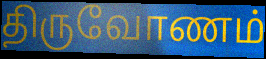
திருவோணம்